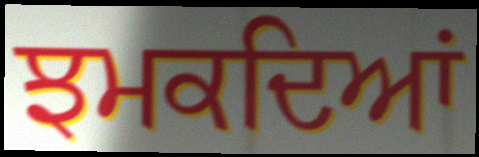
ਝਮਕਦਿਆਂ